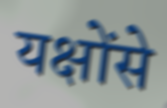
यक्षोंसे